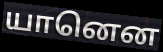
யானென